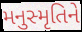
મનુસ્મૃતિને